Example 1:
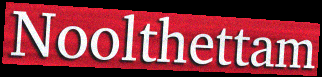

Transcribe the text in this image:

Noolthettam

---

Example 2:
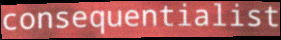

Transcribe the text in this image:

consequentialist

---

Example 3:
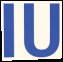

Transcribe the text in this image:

IU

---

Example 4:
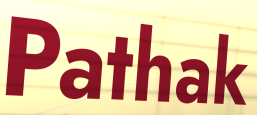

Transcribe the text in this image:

Pathak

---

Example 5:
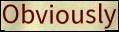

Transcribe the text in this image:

Obviously